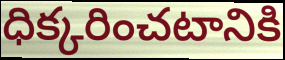
ధిక్కరించటానికి